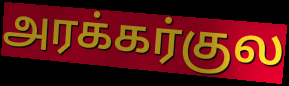
அரக்கர்குல